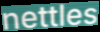
nettles